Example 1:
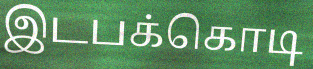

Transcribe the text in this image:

இடபக்கொடி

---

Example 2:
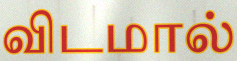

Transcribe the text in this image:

விடமால்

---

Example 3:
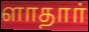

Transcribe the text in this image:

ளாதார்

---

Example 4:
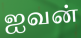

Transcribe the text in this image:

ஐவன்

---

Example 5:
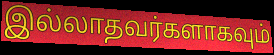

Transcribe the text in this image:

இல்லாதவர்களாகவும்